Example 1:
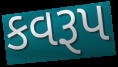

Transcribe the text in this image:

કવરૂપ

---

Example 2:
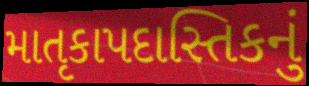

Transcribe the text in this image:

માતૃકાપદાસ્તિકનું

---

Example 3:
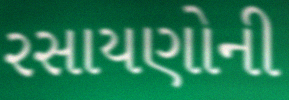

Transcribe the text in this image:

રસાયણોની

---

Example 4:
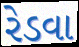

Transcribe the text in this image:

રેડવા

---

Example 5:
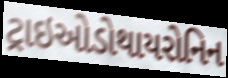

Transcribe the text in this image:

ટ્રાઇઓડોથાયરોનિન